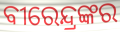
ବୀରେନ୍ଦ୍ରଙ୍କର